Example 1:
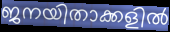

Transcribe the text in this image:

ജനയിതാക്കളിൽ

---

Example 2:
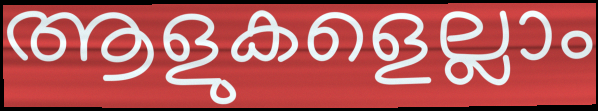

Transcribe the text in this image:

ആളുകളെല്ലാം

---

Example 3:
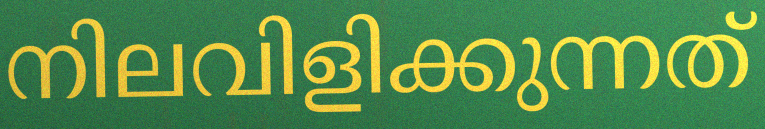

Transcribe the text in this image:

നിലവിളിക്കുന്നത്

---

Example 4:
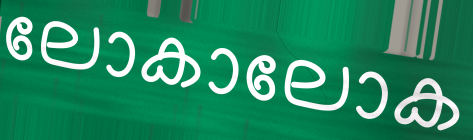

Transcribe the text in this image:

ലോകാലോക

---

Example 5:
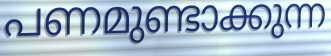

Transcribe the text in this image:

പണമുണ്ടാക്കുന്ന